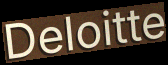
Deloitte